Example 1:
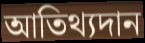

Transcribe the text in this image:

আতিথ্যদান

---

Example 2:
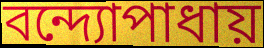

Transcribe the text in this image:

বন্দ্যোপাধায়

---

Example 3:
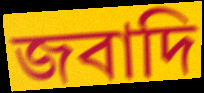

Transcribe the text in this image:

জবাদি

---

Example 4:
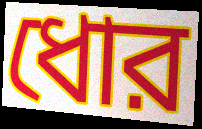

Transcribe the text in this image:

ধোর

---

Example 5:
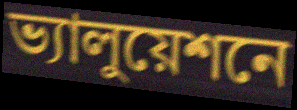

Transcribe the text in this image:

ভ্যালুয়েশনে